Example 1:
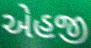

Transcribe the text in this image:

એહજી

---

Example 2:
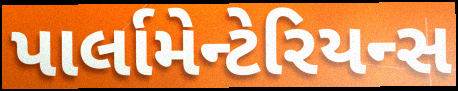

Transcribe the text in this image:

પાર્લામેન્ટેરિયન્સ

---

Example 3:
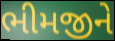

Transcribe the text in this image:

ભીમજીને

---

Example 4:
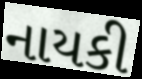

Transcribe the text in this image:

નાયકી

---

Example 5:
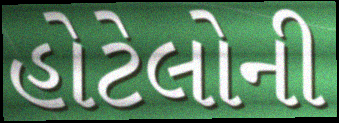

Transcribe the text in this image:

હોટેલોની